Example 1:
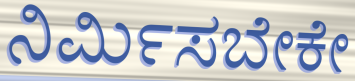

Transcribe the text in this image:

ನಿರ್ಮಿಸಬೇಕೇ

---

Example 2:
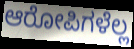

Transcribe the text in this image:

ಆರೋಪಿಗಳೆಲ್ಲ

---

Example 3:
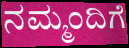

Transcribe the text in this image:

ನಮ್ಮಂದಿಗೆ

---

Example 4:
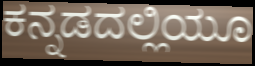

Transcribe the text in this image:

ಕನ್ನಡದಲ್ಲಿಯೂ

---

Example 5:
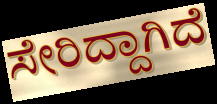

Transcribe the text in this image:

ಸೇರಿದ್ದಾಗಿದೆ